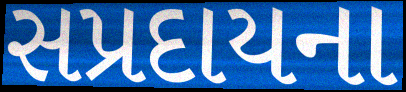
સપ્રદાયના